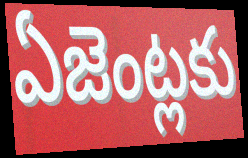
ఏజెంట్లకు